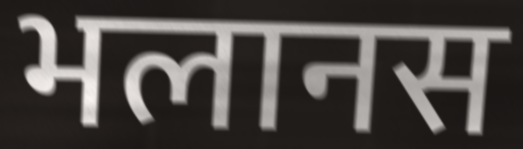
भलानस